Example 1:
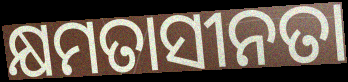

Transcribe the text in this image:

କ୍ଷମତାସୀନତା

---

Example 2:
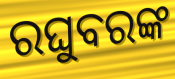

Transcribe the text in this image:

ରଘୁବରଙ୍କ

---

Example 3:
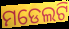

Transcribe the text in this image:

ମଡେଲଟି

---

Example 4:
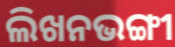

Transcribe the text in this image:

ଲିଖନଭଙ୍ଗୀ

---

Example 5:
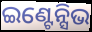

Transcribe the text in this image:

ଇଣ୍ଟେନ୍ସିଭ